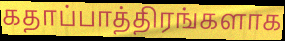
கதாப்பாத்திரங்களாக